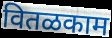
वितळकाम